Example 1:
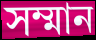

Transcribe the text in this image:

সম্মান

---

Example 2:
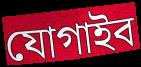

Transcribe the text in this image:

যোগাইব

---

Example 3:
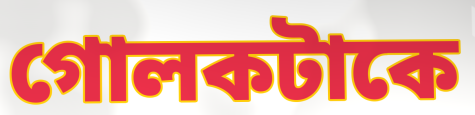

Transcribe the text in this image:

গোলকটাকে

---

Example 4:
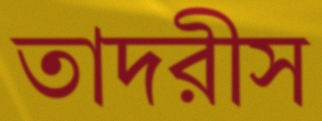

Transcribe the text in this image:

তাদরীস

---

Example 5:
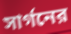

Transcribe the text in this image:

সার্গনের